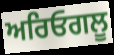
ਅਰਿਓਗਲੂ